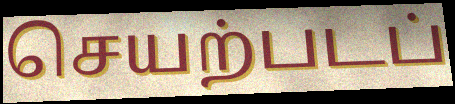
செயற்படப்